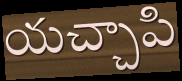
యచ్చాపి